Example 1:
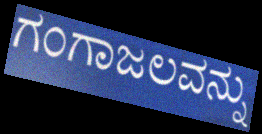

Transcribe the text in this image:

ಗಂಗಾಜಲವನ್ನು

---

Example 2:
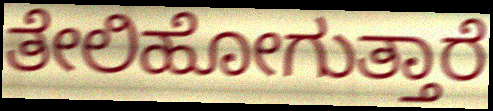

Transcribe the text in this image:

ತೇಲಿಹೋಗುತ್ತಾರೆ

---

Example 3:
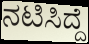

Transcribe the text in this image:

ನಟಿಸಿದ್ದೆ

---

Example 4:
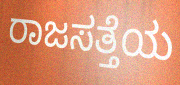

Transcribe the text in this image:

ರಾಜಸತ್ತೆಯ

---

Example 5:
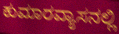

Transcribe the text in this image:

ಕುಮಾರವ್ಯಾಸನಲ್ಲಿ